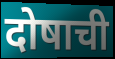
दोषाची